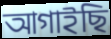
আগাইছি